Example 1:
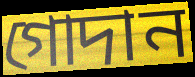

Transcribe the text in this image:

গোদান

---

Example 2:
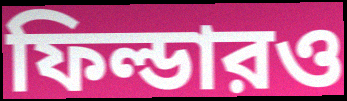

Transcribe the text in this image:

ফিল্ডারও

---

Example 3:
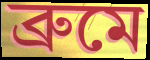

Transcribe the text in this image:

ব্রুমে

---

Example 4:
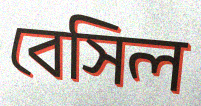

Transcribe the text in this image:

বেসিল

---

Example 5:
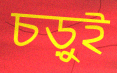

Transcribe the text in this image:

চড়ুই